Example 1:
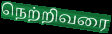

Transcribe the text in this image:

நெற்றிவரை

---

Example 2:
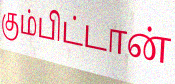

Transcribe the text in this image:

கும்பிட்டான்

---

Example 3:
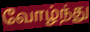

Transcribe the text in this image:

வோழ்ந்து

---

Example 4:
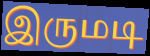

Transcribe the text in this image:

இருமடி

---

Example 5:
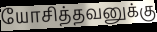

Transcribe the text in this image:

யோசித்தவனுக்கு